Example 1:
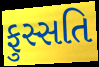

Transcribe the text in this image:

ફુસ્સતિ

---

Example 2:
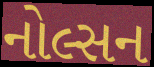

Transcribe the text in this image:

નોલ્સન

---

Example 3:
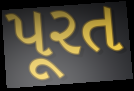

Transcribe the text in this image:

પૂરત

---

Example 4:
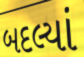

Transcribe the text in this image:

બદલ્યાં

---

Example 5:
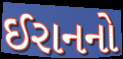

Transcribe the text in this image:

ઈરાનનો